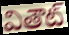
వితౌట్